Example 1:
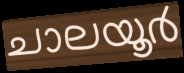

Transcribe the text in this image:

ചാലയൂർ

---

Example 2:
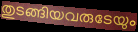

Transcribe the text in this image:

തുടങ്ങിയവരുടേയും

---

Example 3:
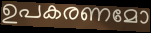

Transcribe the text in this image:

ഉപകരണമോ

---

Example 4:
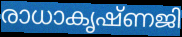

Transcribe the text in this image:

രാധാകൃഷ്ണജി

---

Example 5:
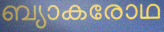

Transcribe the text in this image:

ബ്യാകരോഥ